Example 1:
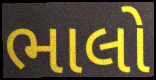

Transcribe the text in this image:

ભાલો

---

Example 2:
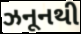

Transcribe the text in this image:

ઝનૂનથી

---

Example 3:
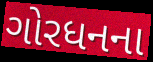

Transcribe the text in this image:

ગોરધનના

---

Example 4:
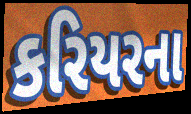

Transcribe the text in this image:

કરિયરના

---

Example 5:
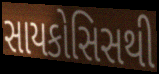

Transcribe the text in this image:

સાયકોસિસથી